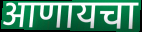
आणायचा